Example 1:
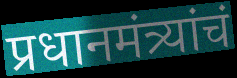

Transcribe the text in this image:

प्रधानमंत्र्यांचं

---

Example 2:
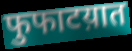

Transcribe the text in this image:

फुफाटय़ात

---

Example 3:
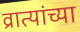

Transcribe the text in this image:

व्रात्यांच्या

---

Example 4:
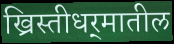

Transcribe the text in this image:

ख्रिस्तीधर्मातील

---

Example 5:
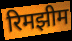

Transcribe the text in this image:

रिमझीम